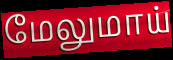
மேலுமாய்